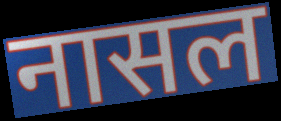
नासल